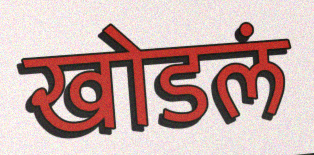
खोडलं